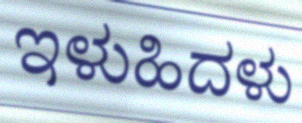
ಇಳುಹಿದಳು